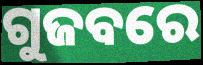
ଗୁଜବରେ